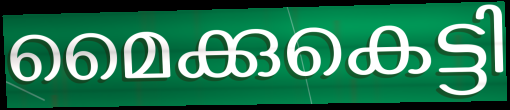
മൈക്കുകെട്ടി